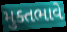
મુક્તભાવે